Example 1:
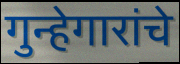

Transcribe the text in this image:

गुन्हेगारांचे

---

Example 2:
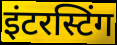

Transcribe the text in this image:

इंटरस्टिंग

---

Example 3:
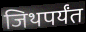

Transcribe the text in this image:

जिथपर्यंत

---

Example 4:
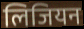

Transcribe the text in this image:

लिजियन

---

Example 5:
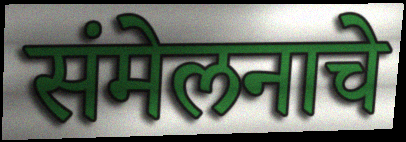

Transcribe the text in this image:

संमेलनाचे